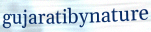
gujaratibynature